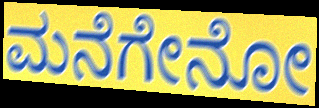
ಮನೆಗೇನೋ